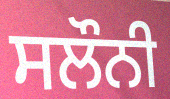
ਸਲੌਨੀ